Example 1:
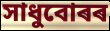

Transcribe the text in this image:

সাধুবোৰৰ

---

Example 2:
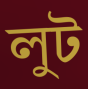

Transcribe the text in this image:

লুট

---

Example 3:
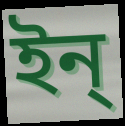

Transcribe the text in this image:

ইন্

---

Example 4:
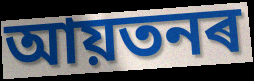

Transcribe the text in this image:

আয়তনৰ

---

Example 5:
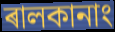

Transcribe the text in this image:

ৰালকানাং